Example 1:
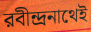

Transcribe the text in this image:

রবীন্দ্রনাথেই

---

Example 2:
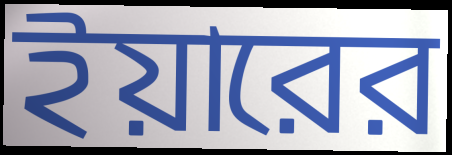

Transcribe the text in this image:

ইয়ারের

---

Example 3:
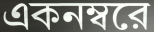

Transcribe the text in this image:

একনম্বরে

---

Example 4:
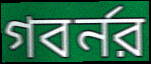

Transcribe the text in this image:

গবর্নর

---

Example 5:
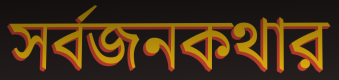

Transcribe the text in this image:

সর্বজনকথার